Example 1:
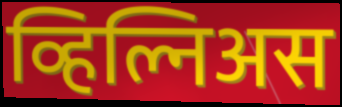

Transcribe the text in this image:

व्हिल्निअस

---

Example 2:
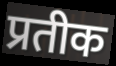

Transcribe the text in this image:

प्रतीक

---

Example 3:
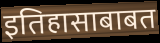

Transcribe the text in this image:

इतिहासाबाबत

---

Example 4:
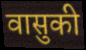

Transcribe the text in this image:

वासुकी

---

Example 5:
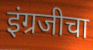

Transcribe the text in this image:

इंग्रजीचा